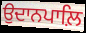
ਉਦਾਨਪਾਲ਼ਿ